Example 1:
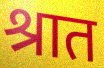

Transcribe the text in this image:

श्रात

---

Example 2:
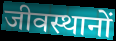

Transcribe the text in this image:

जीवस्थानों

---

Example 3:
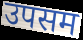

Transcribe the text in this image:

उपसम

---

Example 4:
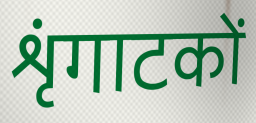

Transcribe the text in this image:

शृंगाटकों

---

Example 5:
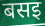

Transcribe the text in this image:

बसइ